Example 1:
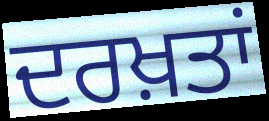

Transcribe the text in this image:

ਦਰਖ਼ਤਾਂ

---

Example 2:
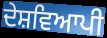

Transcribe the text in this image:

ਦੇਸ਼ਵਿਆਪੀ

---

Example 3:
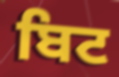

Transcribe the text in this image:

ਬਿਟ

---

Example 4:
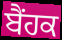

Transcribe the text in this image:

ਬੈਂਹਕ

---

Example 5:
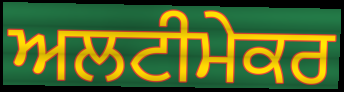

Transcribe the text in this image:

ਅਲਟੀਮੇਕਰ